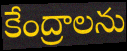
కేంద్రాలను